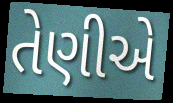
તેણીએ